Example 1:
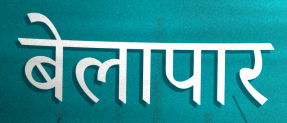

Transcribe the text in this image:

बेलापार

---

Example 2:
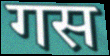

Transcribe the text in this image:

गस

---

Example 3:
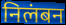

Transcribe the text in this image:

निलंबन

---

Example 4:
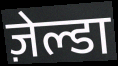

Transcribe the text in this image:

ज़ेल्डा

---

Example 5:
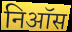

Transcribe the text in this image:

निऑस